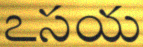
ఽసయ